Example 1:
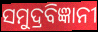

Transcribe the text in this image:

ସମୁଦ୍ରବିଜ୍ଞାନୀ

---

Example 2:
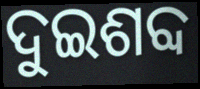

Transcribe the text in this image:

ଦୁଇଶବ୍ଦ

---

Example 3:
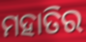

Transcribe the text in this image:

ମହାତିର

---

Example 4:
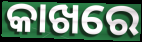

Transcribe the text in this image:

କାଖରେ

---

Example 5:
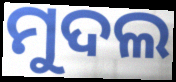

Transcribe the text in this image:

ମୁଦଲ